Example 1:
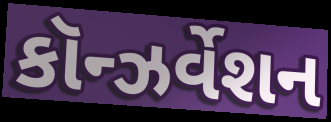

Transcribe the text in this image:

કૉન્ઝર્વેશન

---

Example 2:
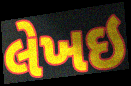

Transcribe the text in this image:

લેખઇ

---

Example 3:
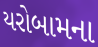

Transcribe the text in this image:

યરોબામના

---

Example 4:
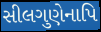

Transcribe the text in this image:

સીલગુણેનાપિ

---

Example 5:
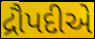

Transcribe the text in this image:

દ્રૌપદીએ